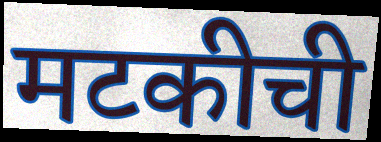
मटकीची